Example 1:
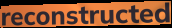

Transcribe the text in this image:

reconstructed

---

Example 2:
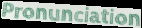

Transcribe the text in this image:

Pronunciation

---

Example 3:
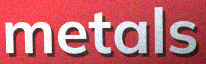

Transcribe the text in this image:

metals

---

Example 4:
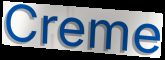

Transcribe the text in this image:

Creme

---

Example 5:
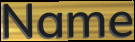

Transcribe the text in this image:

Name